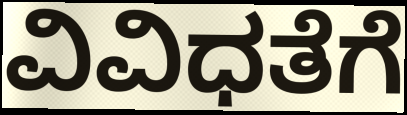
ವಿವಿಧತೆಗೆ